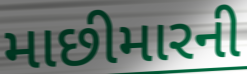
માછીમારની